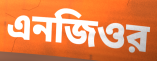
এনজিওর